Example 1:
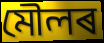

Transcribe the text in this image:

মৌলৰ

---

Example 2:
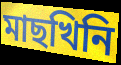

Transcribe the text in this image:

মাছখিনি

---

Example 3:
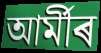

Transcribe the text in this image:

আৰ্মীৰ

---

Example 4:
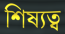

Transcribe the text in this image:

শিষ্যত্ব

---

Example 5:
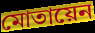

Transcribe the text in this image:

মোতায়েন